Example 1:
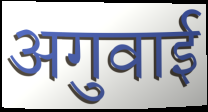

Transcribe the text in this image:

अगुवाई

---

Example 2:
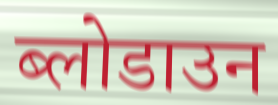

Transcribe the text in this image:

ब्लोडाउन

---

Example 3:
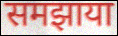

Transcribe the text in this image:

समझाया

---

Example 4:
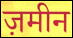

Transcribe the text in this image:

ज़मीन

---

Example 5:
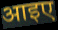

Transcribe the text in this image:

आइए